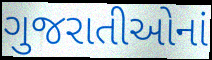
ગુજરાતીઓનાં